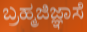
ಬ್ರಹ್ಮಜಿಜ್ಞಾಸೆ